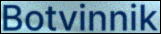
Botvinnik